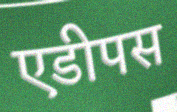
एडीपस